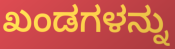
ಖಂಡಗಳನ್ನು